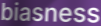
biasness